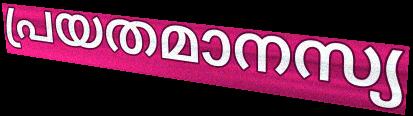
പ്രയതമാനസ്യ